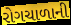
રોગચાળાની